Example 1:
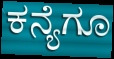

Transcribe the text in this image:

ಕನ್ಯೆಗೂ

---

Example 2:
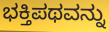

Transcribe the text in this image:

ಭಕ್ತಿಪಥವನ್ನು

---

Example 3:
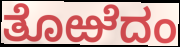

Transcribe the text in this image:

ತೊಱೆದಂ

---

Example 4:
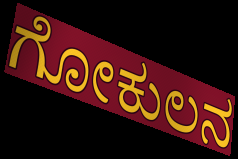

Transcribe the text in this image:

ಗೋಕುಲನ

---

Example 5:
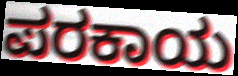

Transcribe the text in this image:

ಪರಕಾಯ